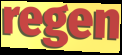
regen